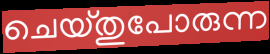
ചെയ്തുപോരുന്ന